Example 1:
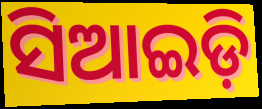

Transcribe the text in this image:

ସିଆଇଡ଼ି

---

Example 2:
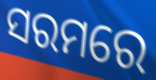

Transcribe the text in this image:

ସରମରେ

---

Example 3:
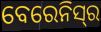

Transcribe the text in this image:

ବେରେନିସ୍‌ର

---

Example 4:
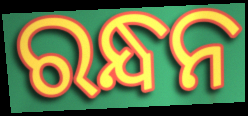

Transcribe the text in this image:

ରନ୍ଧନ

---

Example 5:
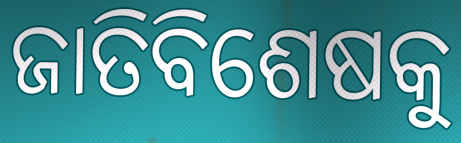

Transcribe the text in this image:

ଜାତିବିଶେଷକୁ